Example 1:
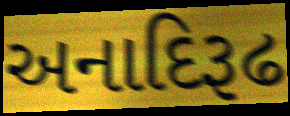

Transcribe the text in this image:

અનાદિરૂઢ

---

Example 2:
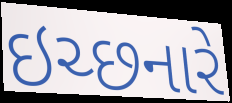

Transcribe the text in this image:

ઇચ્છનારે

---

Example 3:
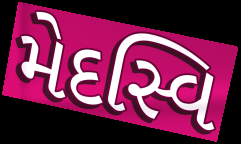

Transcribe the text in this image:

મેદસ્વિ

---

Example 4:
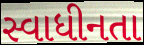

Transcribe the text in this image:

સ્વાધીનતા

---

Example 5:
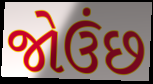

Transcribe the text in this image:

જોઉંછ